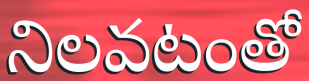
నిలవటంతో